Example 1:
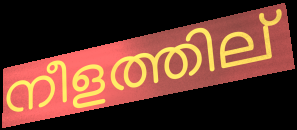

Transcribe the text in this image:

നീളത്തില്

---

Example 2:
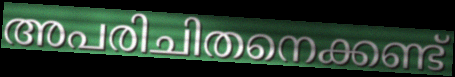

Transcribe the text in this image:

അപരിചിതനെക്കണ്ട്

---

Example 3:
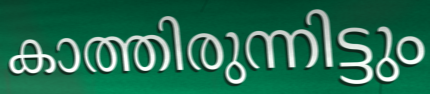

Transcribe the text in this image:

കാത്തിരുന്നിട്ടും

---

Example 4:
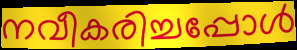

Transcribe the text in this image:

നവീകരിച്ചപ്പോൾ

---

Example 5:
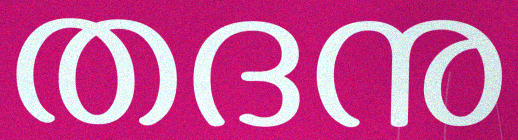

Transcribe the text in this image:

തദനു